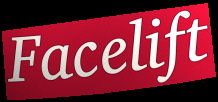
Facelift